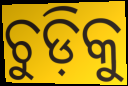
ଚୁଡ଼ିକୁ